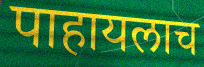
पाहायलाच